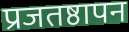
प्रजतष्ठापन